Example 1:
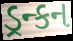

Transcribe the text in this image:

ડ્રન્કન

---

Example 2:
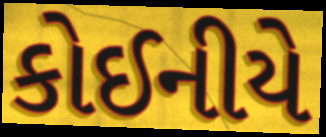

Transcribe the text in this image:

કોઈનીયે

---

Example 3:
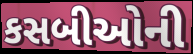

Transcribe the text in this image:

કસબીઓની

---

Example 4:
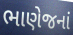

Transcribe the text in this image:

ભાણેજનાં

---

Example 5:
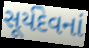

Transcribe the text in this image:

સૂર્યદેવનાં